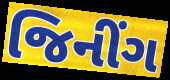
જિનીંગ